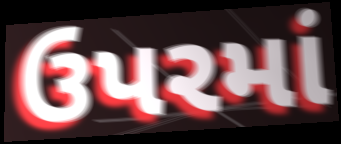
ઉપરમાં